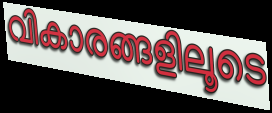
വികാരങ്ങളിലൂടെ